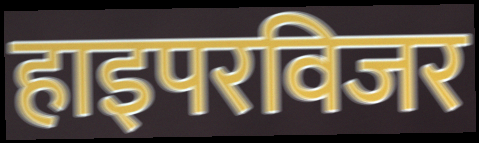
हाइपरविजर